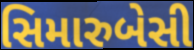
સિમારુબેસી